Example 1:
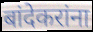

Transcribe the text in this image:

बांदेकरांना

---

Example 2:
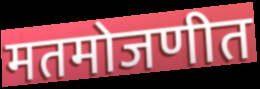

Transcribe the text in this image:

मतमोजणीत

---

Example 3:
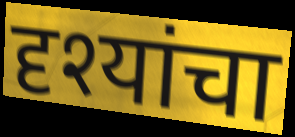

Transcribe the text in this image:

दृश्यांचा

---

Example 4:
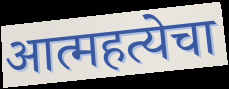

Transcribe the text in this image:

आत्महत्येचा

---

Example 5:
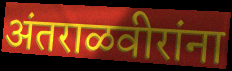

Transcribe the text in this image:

अंतराळवीरांना